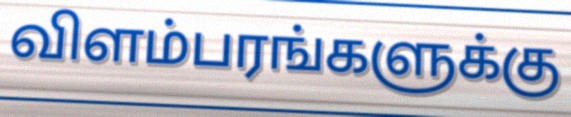
விளம்பரங்களுக்கு